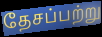
தேசப்பற்று